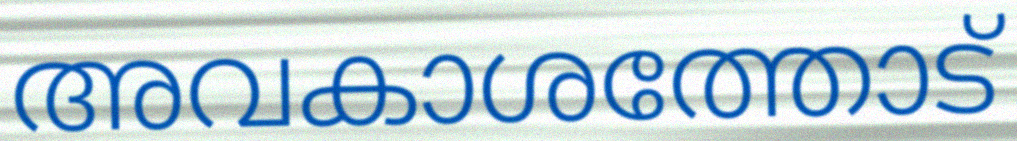
അവകാശത്തോട്